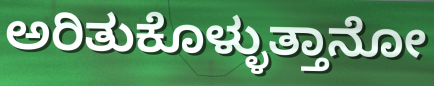
ಅರಿತುಕೊಳ್ಳುತ್ತಾನೋ